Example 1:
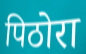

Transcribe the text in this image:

पिठोरा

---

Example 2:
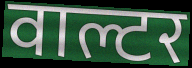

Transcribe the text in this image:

वाल्टर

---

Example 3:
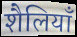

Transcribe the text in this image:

शैलियाँ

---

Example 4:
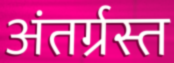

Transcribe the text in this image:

अंतर्ग्रस्त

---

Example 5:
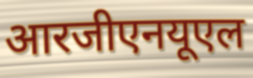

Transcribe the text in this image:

आरजीएनयूएल